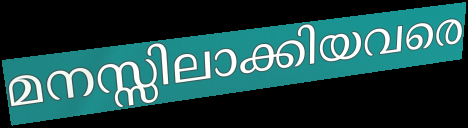
മനസ്സിലാക്കിയവരെ